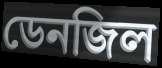
ডেনজিল